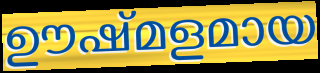
ഊഷ്‌മളമായ